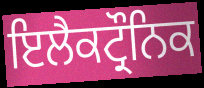
ਇਲੈਕਟ੍ਰੌਨਿਕ